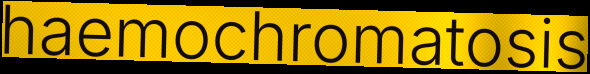
haemochromatosis